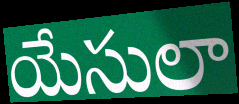
యేసులా